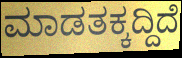
ಮಾಡತಕ್ಕದ್ದಿದೆ